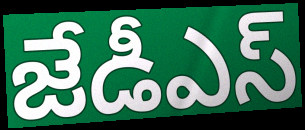
జేడీఎస్